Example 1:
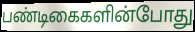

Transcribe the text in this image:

பண்டிகைகளின்போது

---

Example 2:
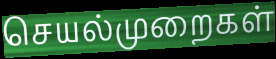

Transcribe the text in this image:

செயல்முறைகள்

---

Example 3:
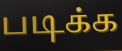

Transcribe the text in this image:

படிக்க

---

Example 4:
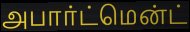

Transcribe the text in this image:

அபார்ட்மென்ட்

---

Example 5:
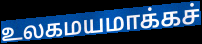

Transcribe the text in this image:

உலகமயமாக்கச்